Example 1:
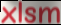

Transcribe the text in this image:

xlsm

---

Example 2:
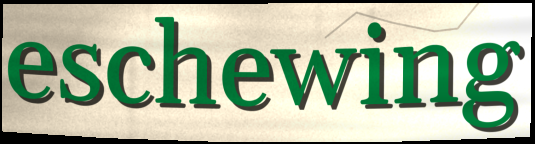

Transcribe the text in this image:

eschewing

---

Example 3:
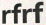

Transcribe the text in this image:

rfrf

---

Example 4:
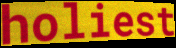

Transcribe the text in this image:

holiest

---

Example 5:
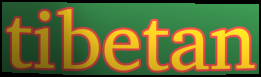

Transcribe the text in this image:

tibetan